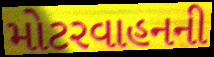
મોટરવાહનની